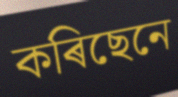
কৰিছেনে